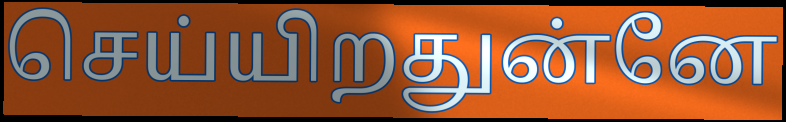
செய்யிறதுன்னே